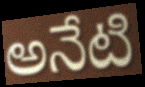
అనేటి